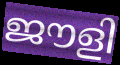
ജൗളി